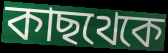
কাছথেকে